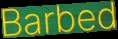
Barbed